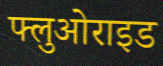
फ्लुओराइड